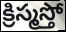
క్రిస్మస్తో